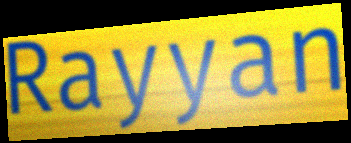
Rayyan